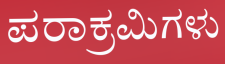
ಪರಾಕ್ರಮಿಗಳು